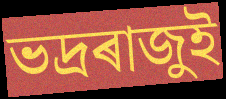
ভদ্ৰৰাজুই